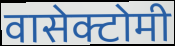
वासेक्टोमी